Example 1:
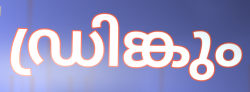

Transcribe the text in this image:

ഡ്രിങ്കും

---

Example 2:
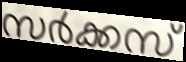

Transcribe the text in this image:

സർക്കസ്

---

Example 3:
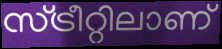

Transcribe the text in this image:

സ്ട്രീറ്റിലാണ്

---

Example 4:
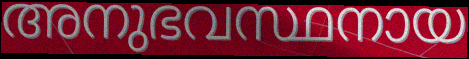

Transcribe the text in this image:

അനുഭവസ്ഥനായ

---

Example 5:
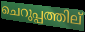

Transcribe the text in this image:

ചെറുപ്പത്തില്